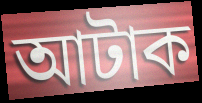
আটাক